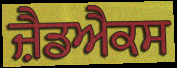
ਜ਼ੈਡਐਕਸ